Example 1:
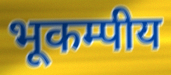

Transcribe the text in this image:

भूकम्पीय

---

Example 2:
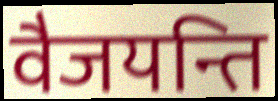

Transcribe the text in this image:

वैजयन्ति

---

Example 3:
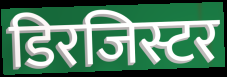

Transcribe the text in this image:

डिरजिस्टर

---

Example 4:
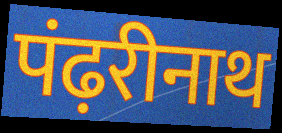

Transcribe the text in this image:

पंढ़रीनाथ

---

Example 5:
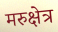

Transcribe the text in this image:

मरुक्षेत्र